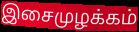
இசைமுழக்கம்